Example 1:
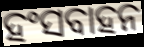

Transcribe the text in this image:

ହଂସବାହନ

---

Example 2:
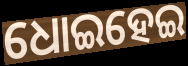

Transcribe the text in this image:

ଧୋଇହେଇ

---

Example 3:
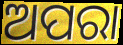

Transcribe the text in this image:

ଅପରା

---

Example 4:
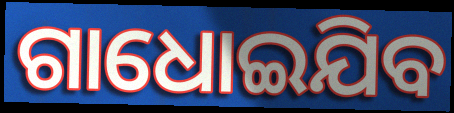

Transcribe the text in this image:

ଗାଧୋଇଯିବ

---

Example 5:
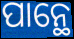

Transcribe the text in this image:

ପାନ୍ଥେ